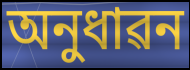
অনুধাৱন